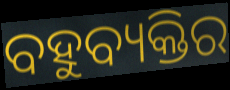
ବହୁବ୍ୟକ୍ତିର